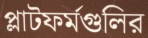
প্লাটফর্মগুলির